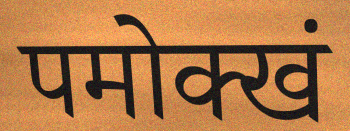
पमोक्खं